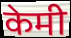
केमी